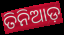
ତିନିଆଡ଼